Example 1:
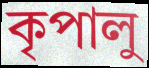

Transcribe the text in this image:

কৃপালু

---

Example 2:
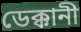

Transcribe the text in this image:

ডেক্কানী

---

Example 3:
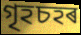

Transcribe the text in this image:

গৃহচহৰ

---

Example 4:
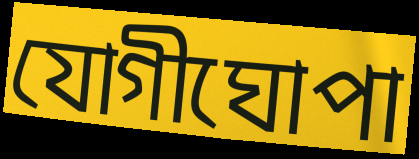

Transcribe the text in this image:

যোগীঘোপা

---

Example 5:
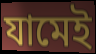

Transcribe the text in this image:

যামেই